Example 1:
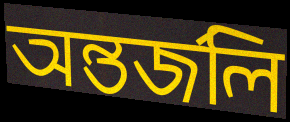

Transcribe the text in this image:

অন্তর্জলি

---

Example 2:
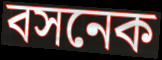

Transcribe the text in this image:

বসনেক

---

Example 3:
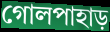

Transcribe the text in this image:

গোলপাহাড়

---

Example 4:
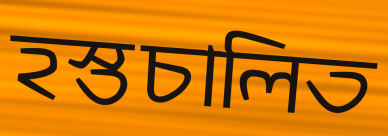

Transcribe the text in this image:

হস্তচালিত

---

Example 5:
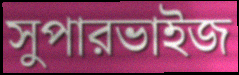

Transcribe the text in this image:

সুপারভাইজ